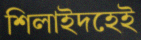
শিলাইদহেই